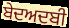
ਬੇਦਅਦਬੀ